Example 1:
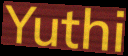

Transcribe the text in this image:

Yuthi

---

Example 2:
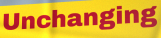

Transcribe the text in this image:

Unchanging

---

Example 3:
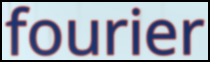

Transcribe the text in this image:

fourier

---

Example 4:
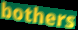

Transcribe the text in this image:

bothers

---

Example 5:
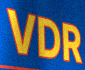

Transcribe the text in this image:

VDR